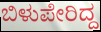
ಬಿಳುಪೇರಿದ್ದ